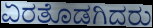
ಏರತೊಡಗಿದರು